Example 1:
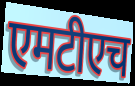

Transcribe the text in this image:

एमटीएच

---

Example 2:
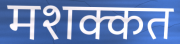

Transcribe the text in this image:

मशक्कत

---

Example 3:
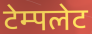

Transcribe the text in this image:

टेम्पलेट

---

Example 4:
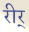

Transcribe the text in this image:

रीर्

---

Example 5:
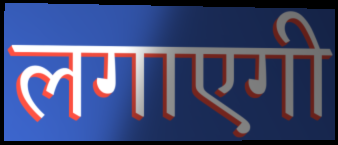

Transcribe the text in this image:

लगाएगी